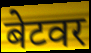
बेटवर